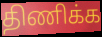
திணிக்க